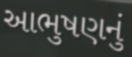
આભુષણનું